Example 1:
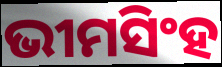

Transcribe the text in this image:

ଭୀମସିଂହ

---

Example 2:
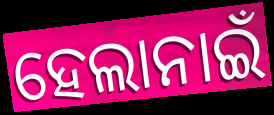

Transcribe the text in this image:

ହେଲାନାଇଁ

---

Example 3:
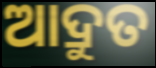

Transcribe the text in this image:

ଆଦ୍ରୁତ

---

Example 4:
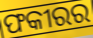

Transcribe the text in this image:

ଫକୀରର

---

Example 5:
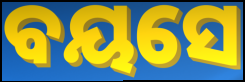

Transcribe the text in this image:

ବୟସେ